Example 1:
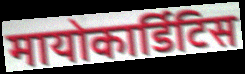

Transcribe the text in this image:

मायोकार्डिटिस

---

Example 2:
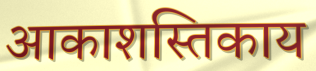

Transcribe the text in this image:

आकाशस्तिकाय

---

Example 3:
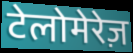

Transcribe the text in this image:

टेलोमेरेज़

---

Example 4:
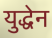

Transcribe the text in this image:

युद्धेन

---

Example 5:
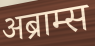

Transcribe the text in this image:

अब्राम्स